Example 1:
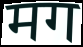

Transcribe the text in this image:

मग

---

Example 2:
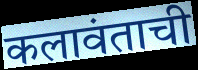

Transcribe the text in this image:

कलावंताची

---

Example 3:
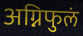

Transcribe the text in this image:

अग्निफुलं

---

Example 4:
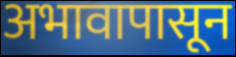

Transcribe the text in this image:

अभावापासून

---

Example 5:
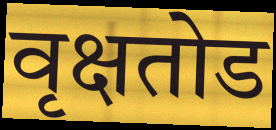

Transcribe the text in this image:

वृक्षतोड